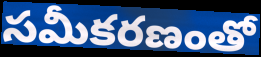
సమీకరణంతో